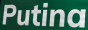
Putina